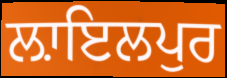
ਲ਼ਾਇਲਪੁਰ